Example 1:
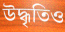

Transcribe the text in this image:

উদ্ধৃতিও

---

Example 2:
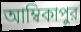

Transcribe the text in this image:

আম্বিকাপুর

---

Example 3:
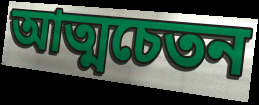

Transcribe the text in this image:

আত্মচেতন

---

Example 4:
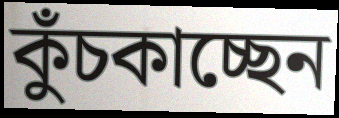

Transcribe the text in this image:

কুঁচকাচ্ছেন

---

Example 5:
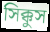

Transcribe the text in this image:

সিক্কুস